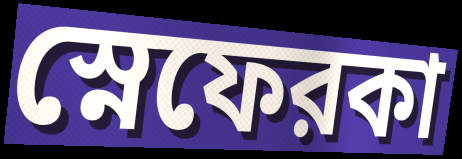
স্নেফেরকা